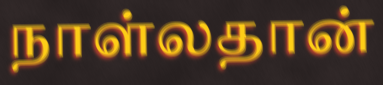
நாள்லதான்